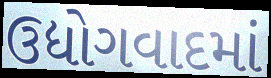
ઉદ્યોગવાદમાં